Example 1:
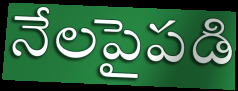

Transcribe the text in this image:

నేలపైపడి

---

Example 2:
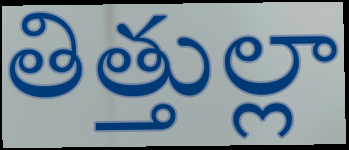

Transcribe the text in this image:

తిత్తుల్లా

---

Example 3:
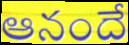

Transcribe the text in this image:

ఆనందే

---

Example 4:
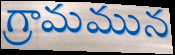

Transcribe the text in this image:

గ్రామమున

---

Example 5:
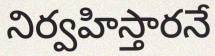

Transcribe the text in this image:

నిర్వహిస్తారనే